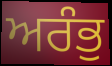
ਅਰੰਭੁ